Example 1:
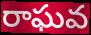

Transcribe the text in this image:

రాఘవ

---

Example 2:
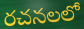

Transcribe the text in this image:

రచనలలో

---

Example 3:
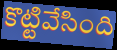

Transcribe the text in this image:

కొట్టివేసింది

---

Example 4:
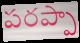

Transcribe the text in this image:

పరప్పా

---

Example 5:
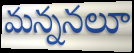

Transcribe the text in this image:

మన్ననలూ